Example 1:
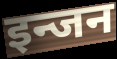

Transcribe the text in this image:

इन्जन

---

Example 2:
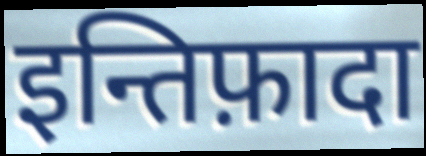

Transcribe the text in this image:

इन्तिफ़ादा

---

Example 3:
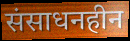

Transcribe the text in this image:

संसाधनहीन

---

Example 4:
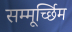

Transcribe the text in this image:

सम्मूर्च्छिम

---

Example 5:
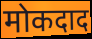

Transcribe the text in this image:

मोकदाद